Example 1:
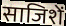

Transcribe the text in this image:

साजिशें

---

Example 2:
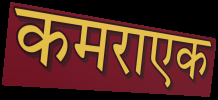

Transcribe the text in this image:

कमराएक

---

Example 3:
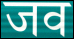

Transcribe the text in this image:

जव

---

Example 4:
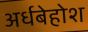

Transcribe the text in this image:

अर्धबेहोश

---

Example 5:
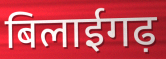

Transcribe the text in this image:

बिलाईगढ़